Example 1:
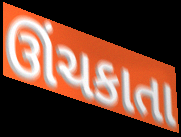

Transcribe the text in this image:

ઊંચકાતા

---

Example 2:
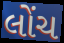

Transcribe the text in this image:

લોંચ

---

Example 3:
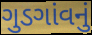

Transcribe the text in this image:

ગુડગાંવનું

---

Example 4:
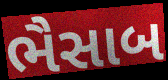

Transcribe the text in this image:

ભૈસાબ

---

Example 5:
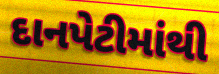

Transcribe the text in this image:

દાનપેટીમાંથી